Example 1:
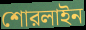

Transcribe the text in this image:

শোরলাইন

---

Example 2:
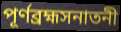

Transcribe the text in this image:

পূর্ণব্রহ্মসনাতনী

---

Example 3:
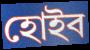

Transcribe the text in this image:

হোইব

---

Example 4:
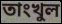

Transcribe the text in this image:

তাংখুল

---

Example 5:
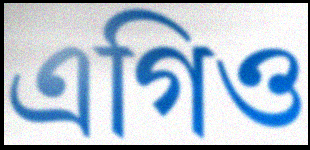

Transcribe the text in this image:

এগিও